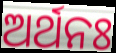
ଅର୍ଥନଃ